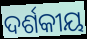
ଦର୍ଶକୀୟ